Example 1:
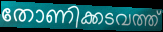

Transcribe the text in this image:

തോണിക്കടവത്ത്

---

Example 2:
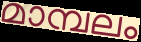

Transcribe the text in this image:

മാമ്പലം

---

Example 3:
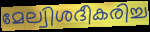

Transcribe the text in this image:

മേല്വിശദീകരിച്ച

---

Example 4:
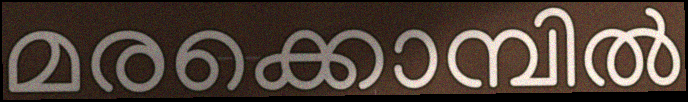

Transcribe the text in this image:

മരക്കൊമ്പിൽ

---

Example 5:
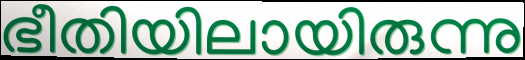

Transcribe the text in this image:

ഭീതിയിലായിരുന്നു